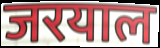
जरयाल